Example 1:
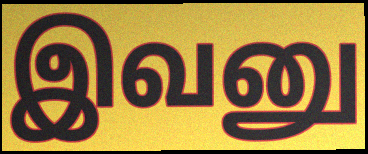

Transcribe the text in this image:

இவனு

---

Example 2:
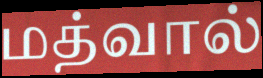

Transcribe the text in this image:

மத்வால்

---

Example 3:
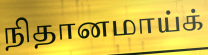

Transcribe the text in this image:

நிதானமாய்க்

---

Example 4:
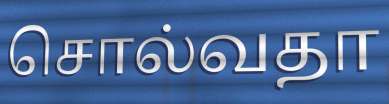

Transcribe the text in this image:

சொல்வதா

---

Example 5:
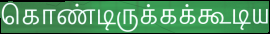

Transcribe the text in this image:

கொண்டிருக்கக்கூடிய